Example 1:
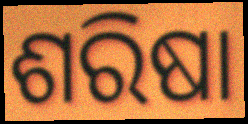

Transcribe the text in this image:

ଶରିଷା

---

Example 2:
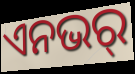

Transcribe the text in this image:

ଏନଭର୍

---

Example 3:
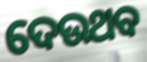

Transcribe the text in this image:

ଦେଉଥବ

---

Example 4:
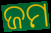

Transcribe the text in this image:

ଜମ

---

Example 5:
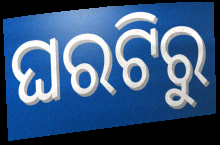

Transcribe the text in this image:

ଘରଟିରୁ